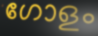
ഗോളം